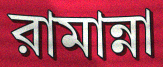
রামান্না